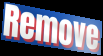
Remove